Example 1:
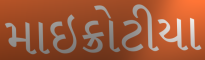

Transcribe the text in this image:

માઇક્રોટીયા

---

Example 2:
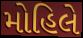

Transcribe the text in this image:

મોહિલે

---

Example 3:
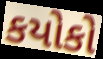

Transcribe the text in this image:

કયોકો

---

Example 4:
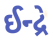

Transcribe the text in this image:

ઈન્દ્રે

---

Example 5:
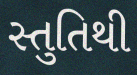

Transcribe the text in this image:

સ્તુતિથી